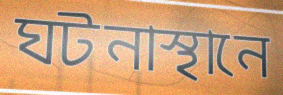
ঘটনাস্থানে